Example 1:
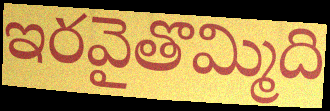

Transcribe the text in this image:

ఇరవైతొమ్మిది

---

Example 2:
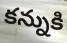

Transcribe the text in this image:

కన్నుకి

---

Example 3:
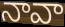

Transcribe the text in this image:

నావా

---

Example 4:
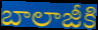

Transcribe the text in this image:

బాలాజీకి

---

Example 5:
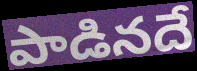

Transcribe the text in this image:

పాడినదే